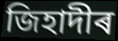
জিহাদীৰ